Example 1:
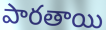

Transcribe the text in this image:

పారతాయి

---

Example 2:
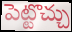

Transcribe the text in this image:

పెట్టొచ్చు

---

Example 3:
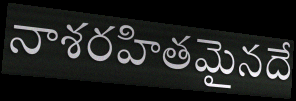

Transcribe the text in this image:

నాశరహితమైనదే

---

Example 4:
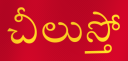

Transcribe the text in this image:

చీలుస్తో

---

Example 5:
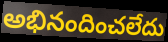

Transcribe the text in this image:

అభినందించలేదు